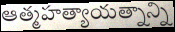
ఆత్మహత్యాయత్నాన్ని